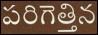
పరిగెత్తిన